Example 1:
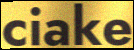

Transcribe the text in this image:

ciake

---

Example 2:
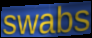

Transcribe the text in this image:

swabs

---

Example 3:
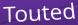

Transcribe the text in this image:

Touted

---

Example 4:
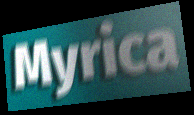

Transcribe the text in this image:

Myrica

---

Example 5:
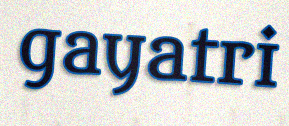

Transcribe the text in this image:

gayatri